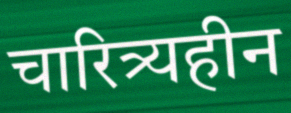
चारित्र्यहीन